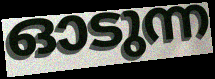
ഓടുന്ന